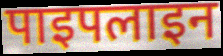
पाइपलाइन